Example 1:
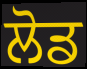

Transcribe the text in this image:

ਲੋਡ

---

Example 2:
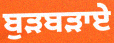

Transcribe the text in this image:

ਬੁੜਬੜਾਏ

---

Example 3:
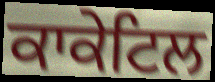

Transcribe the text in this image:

ਕਾਕੇਟਿਲ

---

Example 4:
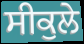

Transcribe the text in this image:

ਸੀਕੁਲੇ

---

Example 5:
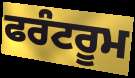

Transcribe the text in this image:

ਫਰੰਟਰੂਮ